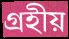
গ্রহীয়